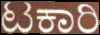
ಟಕಾರಿ